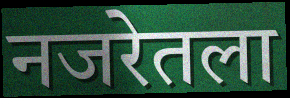
नजरेतला